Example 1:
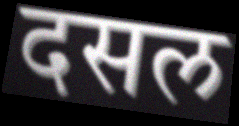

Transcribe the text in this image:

दसल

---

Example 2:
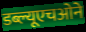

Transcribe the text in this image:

डब्ल्यूएचओने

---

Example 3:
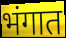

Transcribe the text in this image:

भंगात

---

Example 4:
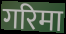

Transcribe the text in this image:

गरिमा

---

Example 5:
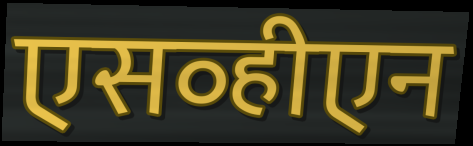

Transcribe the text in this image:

एसव्हीएन